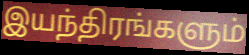
இயந்திரங்களும்